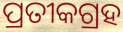
ପ୍ରତୀକଗ୍ରହ